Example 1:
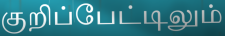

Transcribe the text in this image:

குறிப்பேட்டிலும்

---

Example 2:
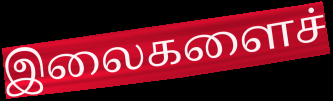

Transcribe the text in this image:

இலைகளைச்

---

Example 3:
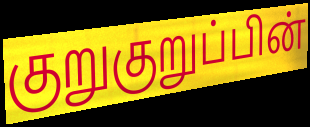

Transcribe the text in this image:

குறுகுறுப்பின்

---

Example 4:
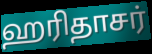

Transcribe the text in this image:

ஹரிதாசர்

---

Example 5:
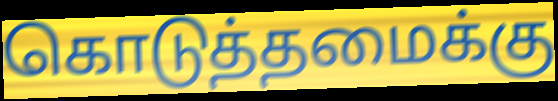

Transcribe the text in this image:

கொடுத்தமைக்கு